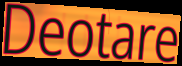
Deotare